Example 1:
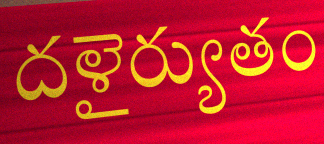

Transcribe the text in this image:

దళైర్యుతం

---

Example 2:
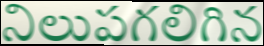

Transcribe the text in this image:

నిలుపగలిగిన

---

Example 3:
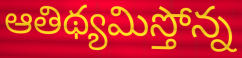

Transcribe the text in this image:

ఆతిథ్యమిస్తోన్న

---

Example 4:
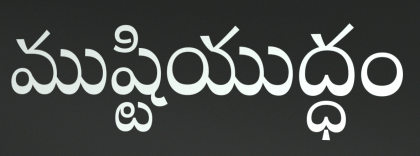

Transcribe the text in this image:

ముష్టియుద్ధం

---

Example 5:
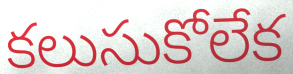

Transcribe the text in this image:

కలుసుకోలేక